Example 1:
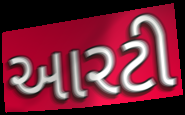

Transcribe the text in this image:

આરટી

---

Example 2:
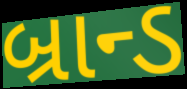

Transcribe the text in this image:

બ્રાન્ડ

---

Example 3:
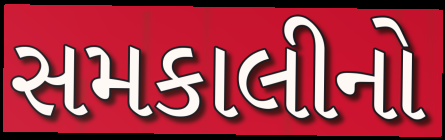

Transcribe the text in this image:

સમકાલીનો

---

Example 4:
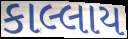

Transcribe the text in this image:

કાલ્લાય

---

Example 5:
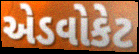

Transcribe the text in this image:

એડવોકેટ